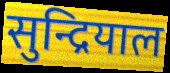
सुन्द्रियाल